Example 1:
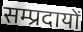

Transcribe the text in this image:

सम्प्रदायों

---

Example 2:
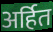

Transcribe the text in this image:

अर्हित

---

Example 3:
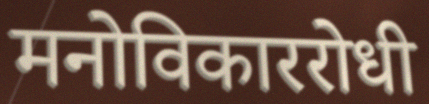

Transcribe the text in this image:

मनोविकाररोधी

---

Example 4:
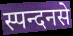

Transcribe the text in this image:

स्पन्दनसे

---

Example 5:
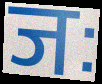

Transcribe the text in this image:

जः